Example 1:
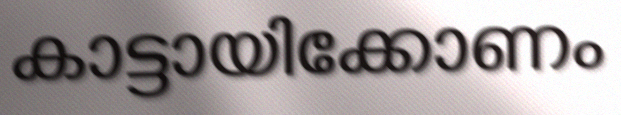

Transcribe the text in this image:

കാട്ടായിക്കോണം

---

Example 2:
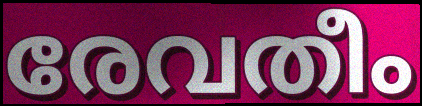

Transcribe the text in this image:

രേവതീം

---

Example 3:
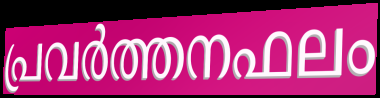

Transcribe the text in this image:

പ്രവർത്തനഫലം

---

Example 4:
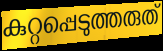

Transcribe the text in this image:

കുറ്റപ്പെടുത്തരുത്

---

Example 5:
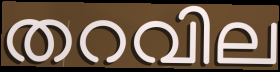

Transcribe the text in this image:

തറവില